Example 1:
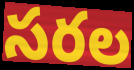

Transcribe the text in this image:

సరల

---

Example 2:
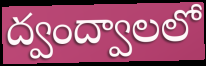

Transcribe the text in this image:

ద్వంద్వాలలో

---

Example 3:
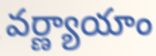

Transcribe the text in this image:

వర్ణ్యాయాం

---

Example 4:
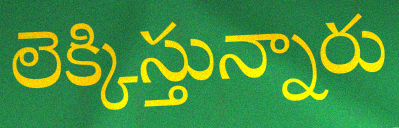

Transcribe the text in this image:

లెక్కిస్తున్నారు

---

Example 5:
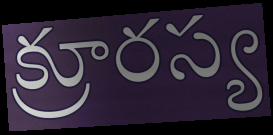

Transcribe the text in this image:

క్రూరస్య